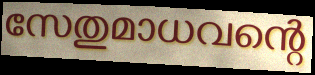
സേതുമാധവന്റെ